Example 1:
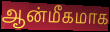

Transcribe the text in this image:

ஆன்மீகமாக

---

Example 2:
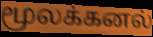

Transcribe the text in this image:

மூலக்கனல்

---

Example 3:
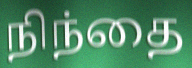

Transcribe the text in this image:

நிந்தை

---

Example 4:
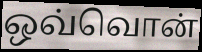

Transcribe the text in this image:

ஒவ்வொன்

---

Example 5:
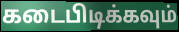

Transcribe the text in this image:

கடைபிடிக்கவும்